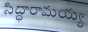
సిద్ధారామయ్య